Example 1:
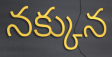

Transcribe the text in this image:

నక్కున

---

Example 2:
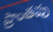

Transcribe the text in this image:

ప్రాంతపు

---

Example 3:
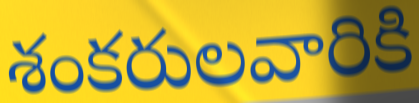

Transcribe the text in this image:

శంకరులవారికి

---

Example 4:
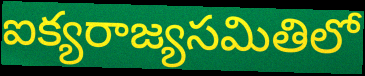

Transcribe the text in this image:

ఐక్యరాజ్యసమితిలో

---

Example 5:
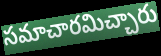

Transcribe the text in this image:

సమాచారమిచ్చారు